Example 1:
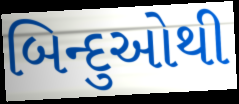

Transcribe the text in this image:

બિન્દુઓથી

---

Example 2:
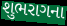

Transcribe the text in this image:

શુભરાગના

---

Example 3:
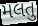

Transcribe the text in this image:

મલતુ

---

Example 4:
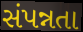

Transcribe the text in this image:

સંપન્નતા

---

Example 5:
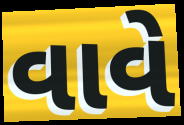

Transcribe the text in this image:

વાવે